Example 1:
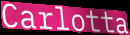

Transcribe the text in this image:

Carlotta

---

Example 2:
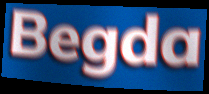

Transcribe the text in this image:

Begda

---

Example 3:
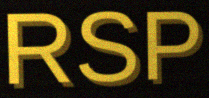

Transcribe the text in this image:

RSP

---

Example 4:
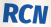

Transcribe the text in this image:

RCN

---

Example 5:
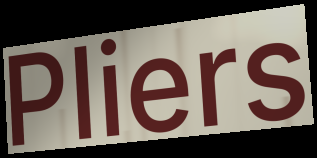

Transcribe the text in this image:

Pliers